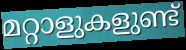
മറ്റാളുകളുണ്ട്